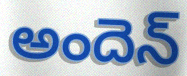
అందెన్